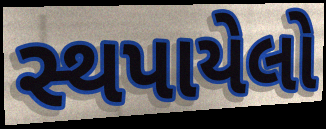
સ્થપાયેલો